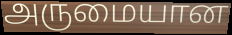
அருமையான